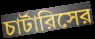
চার্টারিসের